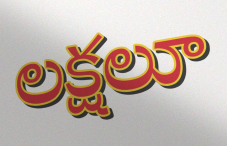
లక్షలూ